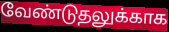
வேண்டுதலுக்காக